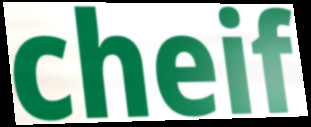
cheif